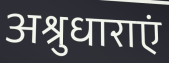
अश्रुधाराएं